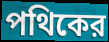
পথিকের